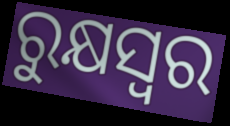
ରୁକ୍ଷସ୍ୱର